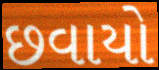
છવાયો